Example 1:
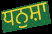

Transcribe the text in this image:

ਧਨੁਸ਼ਾ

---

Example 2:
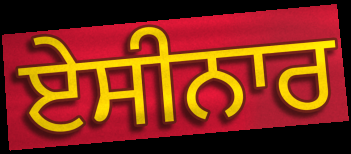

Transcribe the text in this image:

ਏਸੀਨਾਰ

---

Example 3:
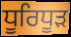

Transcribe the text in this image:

ਧੂਰਿਧੂੜ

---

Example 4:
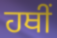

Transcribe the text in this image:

ਹਥੀਂ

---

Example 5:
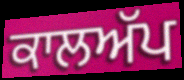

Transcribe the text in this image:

ਕਾਲਅੱਪ